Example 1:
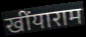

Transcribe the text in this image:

खींयाराम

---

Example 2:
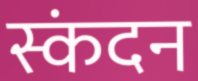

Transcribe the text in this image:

स्कंदन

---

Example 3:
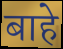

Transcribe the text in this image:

बाहे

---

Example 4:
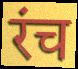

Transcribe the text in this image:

रंच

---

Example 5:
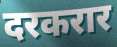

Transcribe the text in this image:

दरकरार